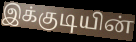
இக்குடியின்